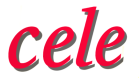
cele